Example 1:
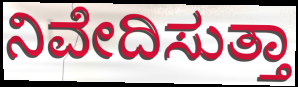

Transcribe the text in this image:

ನಿವೇದಿಸುತ್ತಾ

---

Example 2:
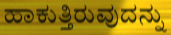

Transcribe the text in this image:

ಹಾಕುತ್ತಿರುವುದನ್ನು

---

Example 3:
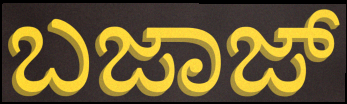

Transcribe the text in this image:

ಬಜಾಜ್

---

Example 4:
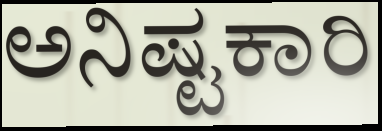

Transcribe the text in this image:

ಅನಿಷ್ಟಕಾರಿ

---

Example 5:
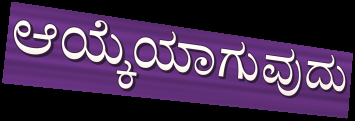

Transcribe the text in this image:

ಆಯ್ಕೆಯಾಗುವುದು